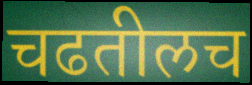
चढतीलच